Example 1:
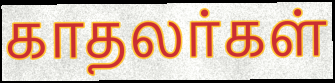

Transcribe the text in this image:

காதலர்கள்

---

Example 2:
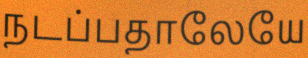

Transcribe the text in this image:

நடப்பதாலேயே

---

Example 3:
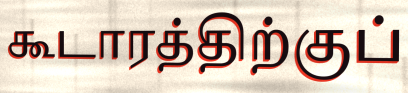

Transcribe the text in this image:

கூடாரத்திற்குப்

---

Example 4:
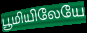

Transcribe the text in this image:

பூமியிலேயே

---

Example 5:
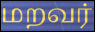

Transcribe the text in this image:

மறவர்